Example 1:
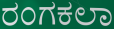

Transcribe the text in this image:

ರಂಗಕಲಾ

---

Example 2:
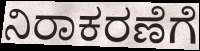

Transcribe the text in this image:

ನಿರಾಕರಣೆಗೆ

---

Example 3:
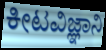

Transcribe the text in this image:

ಕೀಟವಿಜ್ಞಾನಿ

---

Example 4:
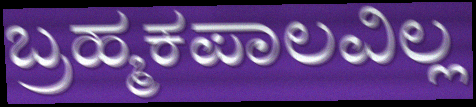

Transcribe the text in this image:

ಬ್ರಹ್ಮಕಪಾಲವಿಲ್ಲ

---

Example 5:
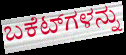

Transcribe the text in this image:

ಬಕೆಟ್‌ಗಳನ್ನು